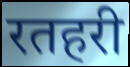
रतहरी